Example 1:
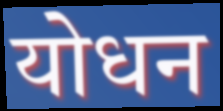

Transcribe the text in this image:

योधन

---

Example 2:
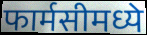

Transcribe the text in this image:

फार्मसीमध्ये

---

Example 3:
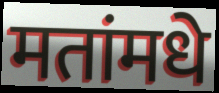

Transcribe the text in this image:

मतांमधे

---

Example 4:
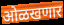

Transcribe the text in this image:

ओळखणार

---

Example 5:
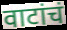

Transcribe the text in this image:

वाटांचं